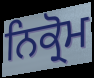
ਨਿਕ੍ਰੋਮ